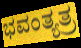
ಭವಂತ್ಯತ್ರ